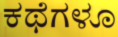
ಕಥೆಗಳೂ